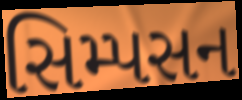
સિમ્પસન